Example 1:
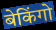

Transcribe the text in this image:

बेकिंगो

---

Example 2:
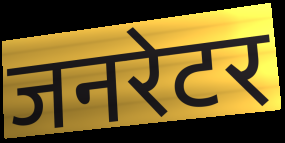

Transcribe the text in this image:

जनरेटर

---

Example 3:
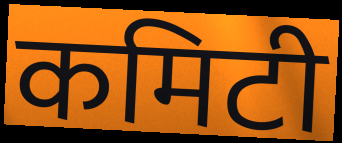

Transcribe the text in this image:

कमिटी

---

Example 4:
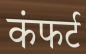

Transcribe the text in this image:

कंफर्ट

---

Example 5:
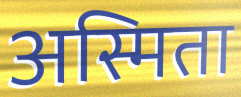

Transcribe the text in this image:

अस्मिता